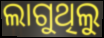
ଲାଗୁଥିଲୁ